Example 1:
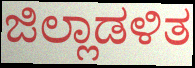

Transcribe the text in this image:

ಜಿಲ್ಲಾಡಳಿತ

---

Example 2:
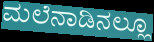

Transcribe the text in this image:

ಮಲೆನಾಡಿನಲ್ಲೂ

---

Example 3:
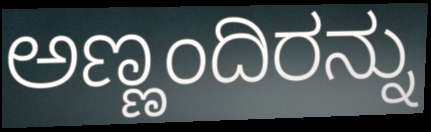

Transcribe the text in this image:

ಅಣ್ಣಂದಿರನ್ನು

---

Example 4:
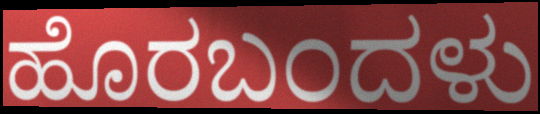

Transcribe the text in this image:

ಹೊರಬಂದಳು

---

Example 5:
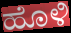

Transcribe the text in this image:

ಹೊಳಿ